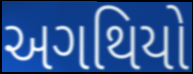
અગથિયો